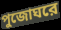
পুজোঘরে